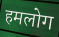
हमलोग